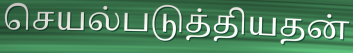
செயல்படுத்தியதன்